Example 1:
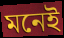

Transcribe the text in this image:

মনেই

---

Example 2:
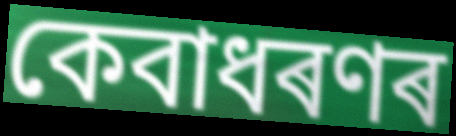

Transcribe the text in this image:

কেবাধৰণৰ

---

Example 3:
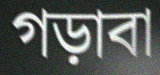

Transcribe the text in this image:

গড়াবা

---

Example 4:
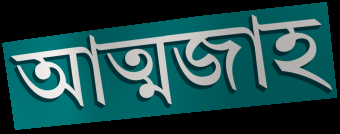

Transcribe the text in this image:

আত্মজাহ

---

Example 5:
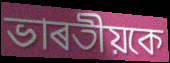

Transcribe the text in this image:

ভাৰতীয়কে